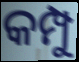
କମ୍ପୁ